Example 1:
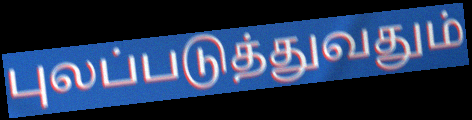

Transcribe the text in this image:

புலப்படுத்துவதும்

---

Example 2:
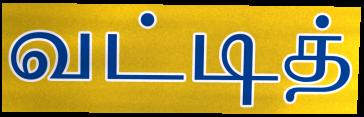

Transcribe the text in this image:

வட்டித்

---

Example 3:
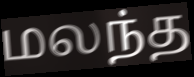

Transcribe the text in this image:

மலந்த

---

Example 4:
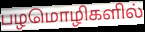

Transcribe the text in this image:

பழமொழிகளில்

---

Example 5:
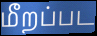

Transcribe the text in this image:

மீறப்பட